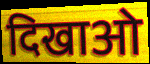
दिखाओ